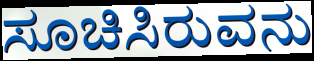
ಸೂಚಿಸಿರುವನು